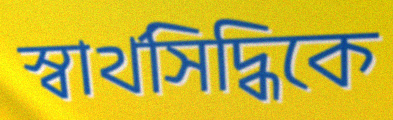
স্বার্থসিদ্ধিকে